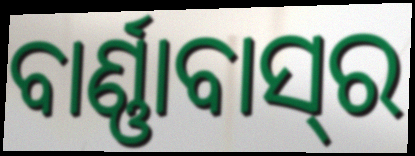
ବାର୍ଣ୍ଣାବାସ୍‌ର